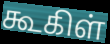
கூகிள்